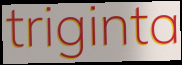
triginta